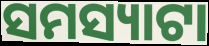
ସମସ୍ୟାଟା